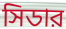
সিডার